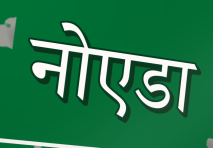
नोएडा